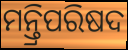
ମନ୍ତ୍ରିପରିଷଦ